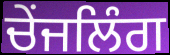
ਚੇਂਜਲਿੰਗ